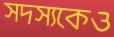
সদস্যকেও